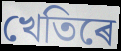
খেতিৰে